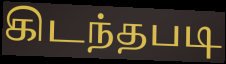
கிடந்தபடி